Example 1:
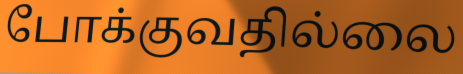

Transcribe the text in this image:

போக்குவதில்லை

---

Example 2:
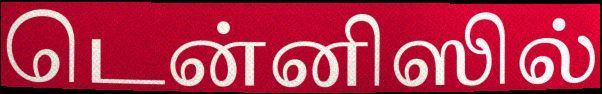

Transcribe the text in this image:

டென்னிஸில்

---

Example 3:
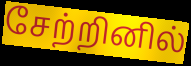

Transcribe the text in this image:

சேற்றினில்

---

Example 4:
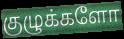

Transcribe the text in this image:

குழுக்களோ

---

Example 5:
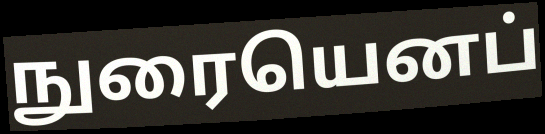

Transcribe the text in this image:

நுரையெனப்